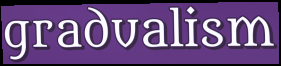
gradualism